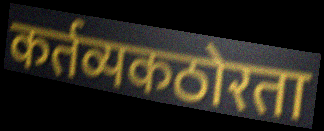
कर्तव्यकठोरता